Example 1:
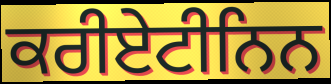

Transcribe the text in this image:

ਕਰੀਏਟੀਨਿਨ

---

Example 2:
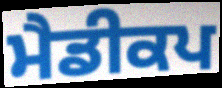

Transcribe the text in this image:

ਮੈਡੀਕਪ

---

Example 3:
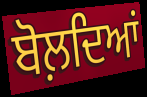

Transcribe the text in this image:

ਬੋਲ਼ਦਿਆਂ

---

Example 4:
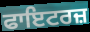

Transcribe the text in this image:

ਫਾਇਟਰਜ਼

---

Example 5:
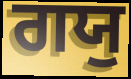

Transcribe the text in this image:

ਗਯੁ